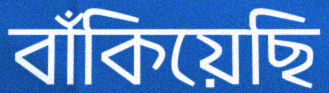
বাঁকিয়েছি